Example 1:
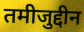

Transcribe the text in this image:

तमीजुद्दीन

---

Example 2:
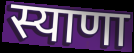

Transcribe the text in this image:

स्याणा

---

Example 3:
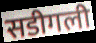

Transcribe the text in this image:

सडीगली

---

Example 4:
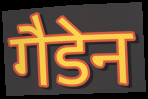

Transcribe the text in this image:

गैडेन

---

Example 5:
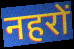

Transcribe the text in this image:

नहरों